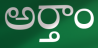
అర్తాం